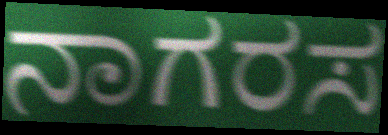
ನಾಗರಸ